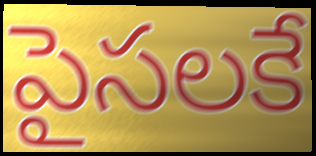
పైసలకే